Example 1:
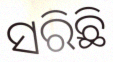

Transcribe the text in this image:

ସରିଛି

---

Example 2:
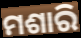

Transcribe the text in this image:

ମଶାରି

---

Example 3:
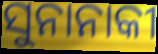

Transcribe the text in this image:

ସୁନାନାକୀ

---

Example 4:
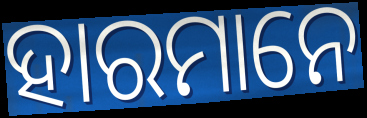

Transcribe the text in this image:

ହାରମାନେ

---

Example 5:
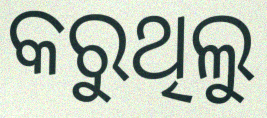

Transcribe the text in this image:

କରୁଥିଲୁ